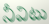
నీవిటు